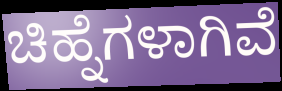
ಚಿಹ್ನೆಗಳಾಗಿವೆ